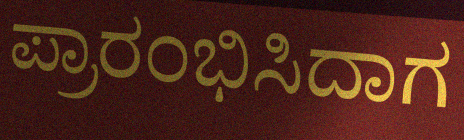
ಪ್ರಾರಂಭಿಸಿದಾಗ